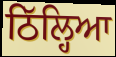
ਠਿੱਲ੍ਹਿਆ